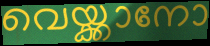
വെയ്ക്കാനോ